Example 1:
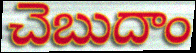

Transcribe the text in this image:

చెబుదాం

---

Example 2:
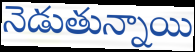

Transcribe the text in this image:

నెడుతున్నాయి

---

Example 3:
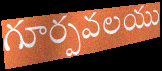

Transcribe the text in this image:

గూర్పవలయు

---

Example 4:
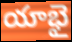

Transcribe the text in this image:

యాభై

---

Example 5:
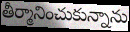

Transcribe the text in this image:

తీర్మానించుకున్నాను